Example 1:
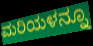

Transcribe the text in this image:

ಮರಿಯಳನ್ನೂ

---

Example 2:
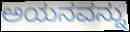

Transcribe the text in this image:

ಅಯನವನ್ನು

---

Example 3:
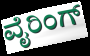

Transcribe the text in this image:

ವೈರಿಂಗ್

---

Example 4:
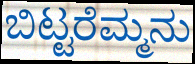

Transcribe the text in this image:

ಬಿಟ್ಟರೆಮ್ಮನು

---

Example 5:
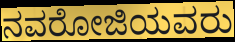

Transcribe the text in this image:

ನವರೋಜಿಯವರು